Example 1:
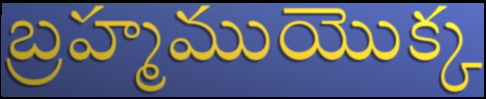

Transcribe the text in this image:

బ్రహ్మముయొక్క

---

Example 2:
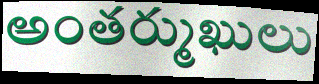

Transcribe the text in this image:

అంతర్ముఖులు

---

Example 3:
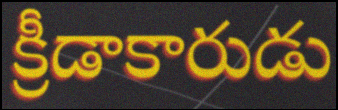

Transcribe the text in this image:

క్రీడాకారుడు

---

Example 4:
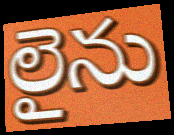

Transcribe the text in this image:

లైను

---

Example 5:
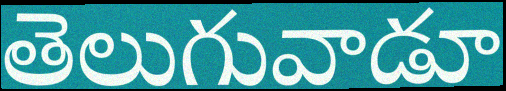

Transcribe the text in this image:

తెలుగువాడూ